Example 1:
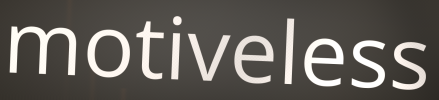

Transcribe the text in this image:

motiveless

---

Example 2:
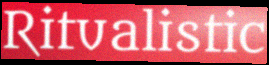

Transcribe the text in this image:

Ritualistic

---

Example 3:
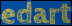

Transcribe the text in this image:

edart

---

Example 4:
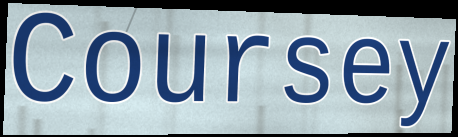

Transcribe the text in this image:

Coursey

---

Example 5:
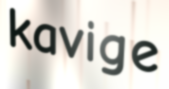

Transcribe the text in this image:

kavige